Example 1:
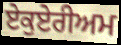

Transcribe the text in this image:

ਏਕੁਏਰੀਅਮ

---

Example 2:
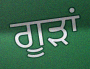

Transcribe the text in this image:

ਗੂੜਾਂ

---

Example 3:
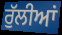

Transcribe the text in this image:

ਰੁੱਲੀਆਂ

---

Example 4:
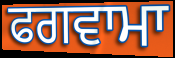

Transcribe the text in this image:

ਫਗਵਾਮਾ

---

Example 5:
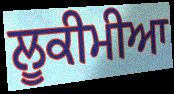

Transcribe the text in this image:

ਲੂਕੀਮੀਆ